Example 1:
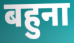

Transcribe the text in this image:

बहुना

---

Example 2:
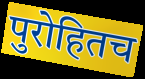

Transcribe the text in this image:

पुरोहितच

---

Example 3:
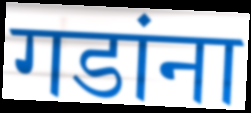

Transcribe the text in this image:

गडांना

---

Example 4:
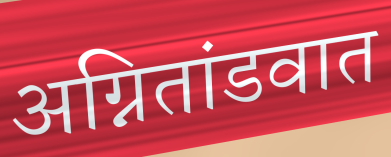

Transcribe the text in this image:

अग्नितांडवात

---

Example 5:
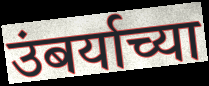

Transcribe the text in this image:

उंबर्याच्या